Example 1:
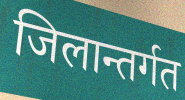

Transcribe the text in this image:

जिलान्तर्गत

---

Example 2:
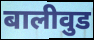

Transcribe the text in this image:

बालीवुड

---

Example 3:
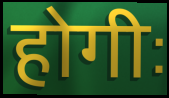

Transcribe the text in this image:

होगीः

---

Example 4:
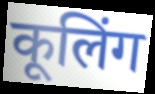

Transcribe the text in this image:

कूलिंग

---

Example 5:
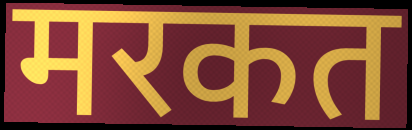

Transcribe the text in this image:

मरकत